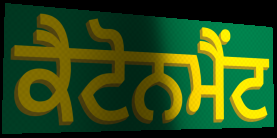
ਕੈਟੋਨਮੈਂਟ